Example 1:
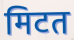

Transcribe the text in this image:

मिटत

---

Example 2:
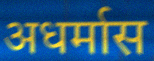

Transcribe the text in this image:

अधर्मास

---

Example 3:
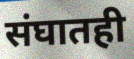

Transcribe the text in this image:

संघातही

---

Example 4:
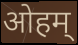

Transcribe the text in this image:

ओहम्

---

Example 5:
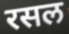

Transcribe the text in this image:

रसल